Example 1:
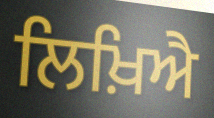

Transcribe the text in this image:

ਲਿਖ਼ਿਐ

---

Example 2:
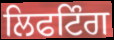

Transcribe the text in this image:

ਲਿਫਟਿੰਗ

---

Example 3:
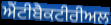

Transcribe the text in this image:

ਐਂਟੀਬੈਕਟੀਰੀਅਲ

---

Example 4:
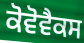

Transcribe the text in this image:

ਕੋਵੋਵੈਕਸ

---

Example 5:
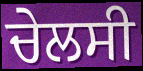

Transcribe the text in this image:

ਚੇਲਸੀ